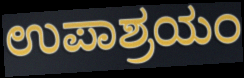
ಉಪಾಶ್ರಯಂ